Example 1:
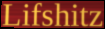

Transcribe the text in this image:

Lifshitz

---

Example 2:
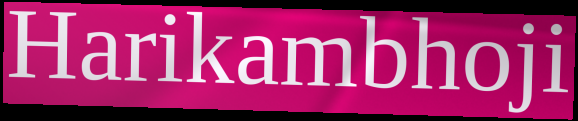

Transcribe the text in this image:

Harikambhoji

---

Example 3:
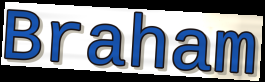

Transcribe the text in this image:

Braham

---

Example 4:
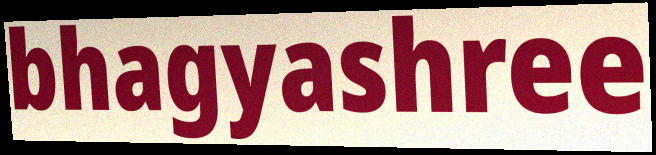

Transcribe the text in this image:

bhagyashree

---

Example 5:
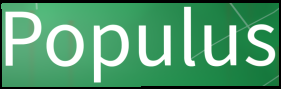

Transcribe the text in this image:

Populus